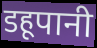
डहूपानी